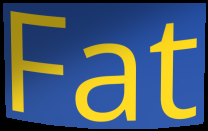
Fat